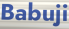
Babuji